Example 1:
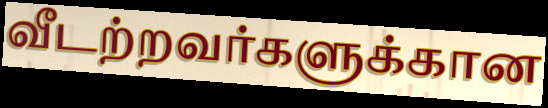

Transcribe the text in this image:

வீடற்றவர்களுக்கான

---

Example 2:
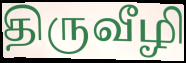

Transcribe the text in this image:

திருவீழி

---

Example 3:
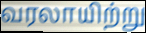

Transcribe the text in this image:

வரலாயிற்று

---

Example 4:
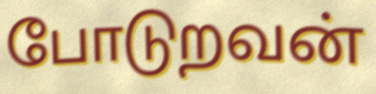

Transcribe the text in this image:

போடுறவன்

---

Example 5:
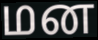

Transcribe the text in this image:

மன